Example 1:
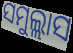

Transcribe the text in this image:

ସମୁଲ୍ଲାସ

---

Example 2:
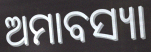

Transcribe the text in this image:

ଅମାବସ୍ୟା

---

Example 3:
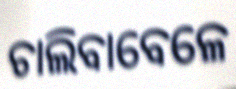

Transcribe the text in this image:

ଚାଲିବାବେଳେ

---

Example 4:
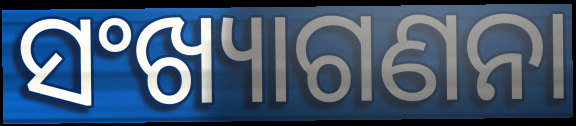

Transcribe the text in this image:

ସଂଖ୍ୟାଗଣନା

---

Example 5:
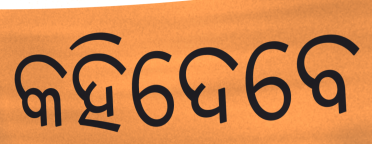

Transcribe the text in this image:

କହିଦେବେ